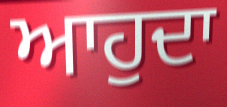
ਆਹੁਦਾ